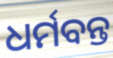
ଧର୍ମବନ୍ତ